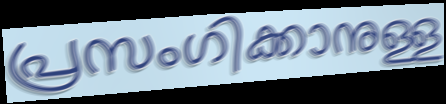
പ്രസംഗിക്കാനുള്ള